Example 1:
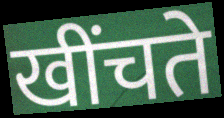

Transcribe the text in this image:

खींचते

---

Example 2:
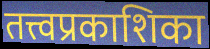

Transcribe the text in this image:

तत्त्वप्रकाशिका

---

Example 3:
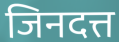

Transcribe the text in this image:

जिनदत्त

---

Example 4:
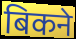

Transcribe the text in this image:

बिकने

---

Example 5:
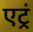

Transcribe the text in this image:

एट्रं